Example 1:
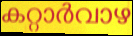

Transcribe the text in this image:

കറ്റാർവാഴ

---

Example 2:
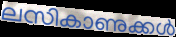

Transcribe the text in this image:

ലസികാണുക്കൾ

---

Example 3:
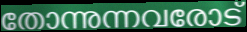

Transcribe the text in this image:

തോന്നുന്നവരോട്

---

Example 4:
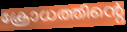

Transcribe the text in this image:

ക്രോധത്തിന്റെ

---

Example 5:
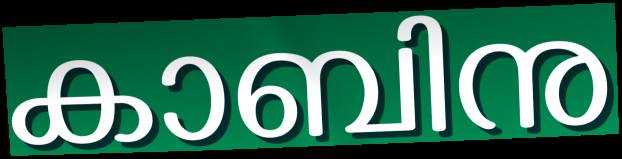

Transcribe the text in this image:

കാബിനു